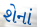
શેનાં